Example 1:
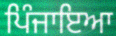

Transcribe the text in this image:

ਪਿੰਜਾਇਆ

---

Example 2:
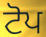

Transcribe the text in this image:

ਟੋਪ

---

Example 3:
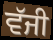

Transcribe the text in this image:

ਵੱਜੀ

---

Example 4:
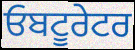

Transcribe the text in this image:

ਓਬਟੂਰੇਟਰ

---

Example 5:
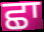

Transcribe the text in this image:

ਛਾ